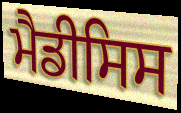
ਮੈਡੀਸਿਸ